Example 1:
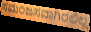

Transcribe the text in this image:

ಸಮಂಜಸವಾಗಿರಲಿಲ್ಲ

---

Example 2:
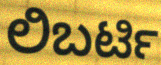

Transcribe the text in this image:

ಲಿಬರ್ಟಿ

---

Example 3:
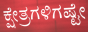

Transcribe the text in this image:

ಕ್ಷೇತ್ರಗಳಿಗಷ್ಟೇ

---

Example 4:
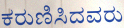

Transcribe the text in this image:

ಕರುಣಿಸಿದವರು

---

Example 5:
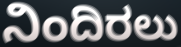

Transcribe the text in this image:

ನಿಂದಿರಲು